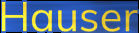
Hauser